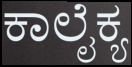
ಕಾಲೈಕ್ಯ